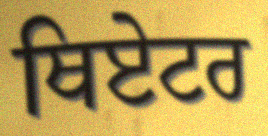
ਥਿਏਟਰ